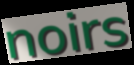
noirs